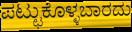
ಪಟ್ಟುಕೊಳ್ಳಬಾರದು